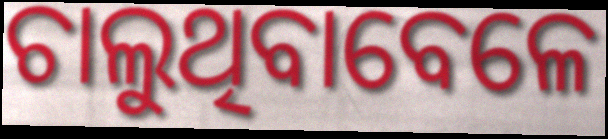
ଚାଲୁଥିବାବେଳେ